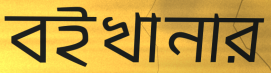
বইখানার